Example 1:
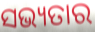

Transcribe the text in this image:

ସଭ୍ୟତାର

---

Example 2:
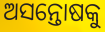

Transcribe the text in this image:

ଅସନ୍ତୋଷକୁ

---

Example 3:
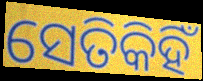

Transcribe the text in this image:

ସେତିକିହିଁ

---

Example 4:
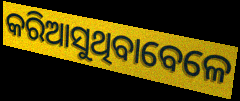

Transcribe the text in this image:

କରିଆସୁଥିବାବେଳେ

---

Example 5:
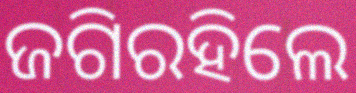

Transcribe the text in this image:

ଜଗିରହିଲେ